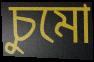
চুমো